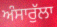
ਅੰਸਾਰੁੱਲਾ